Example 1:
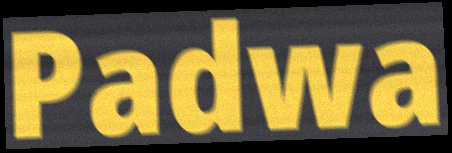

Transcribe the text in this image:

Padwa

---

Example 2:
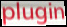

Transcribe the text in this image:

plugin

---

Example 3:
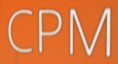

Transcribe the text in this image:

CPM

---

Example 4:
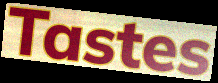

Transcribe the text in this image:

Tastes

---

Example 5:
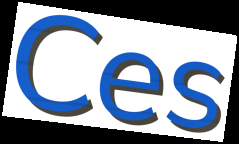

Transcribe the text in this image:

Ces